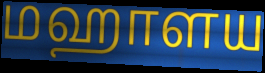
மஹாளய